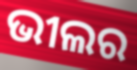
ଭୀଲର